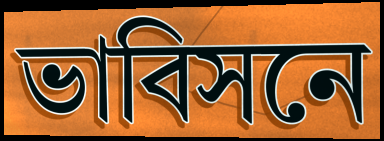
ভাবিসনে